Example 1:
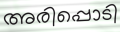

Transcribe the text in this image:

അരിപ്പൊടി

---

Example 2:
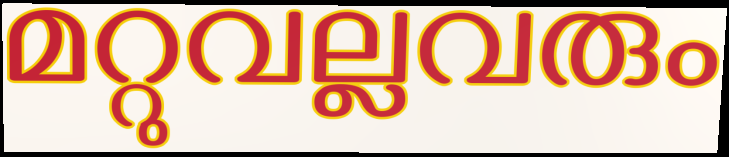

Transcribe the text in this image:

മറ്റുവല്ലവരും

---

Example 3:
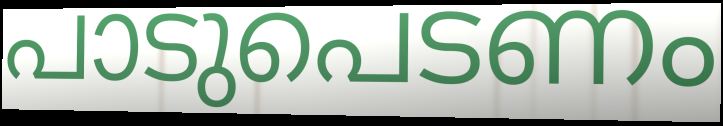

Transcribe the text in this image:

പാടുപെടണം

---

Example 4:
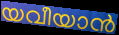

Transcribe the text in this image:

യവീയാൻ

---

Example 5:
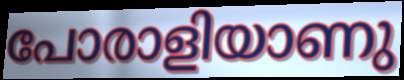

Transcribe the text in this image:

പോരാളിയാണു